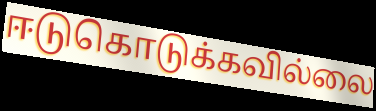
ஈடுகொடுக்கவில்லை